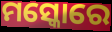
ମସ୍କୋରେ